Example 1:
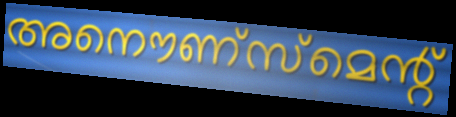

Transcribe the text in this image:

അനൌണ്സ്മെന്റ്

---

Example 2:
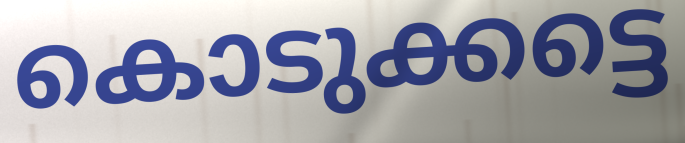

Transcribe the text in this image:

കൊടുക്കട്ടെ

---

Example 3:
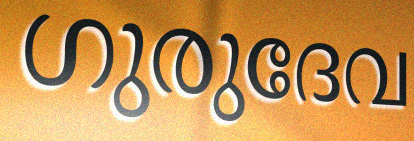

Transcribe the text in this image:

ഗുരുദേവ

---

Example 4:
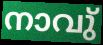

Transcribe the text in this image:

നാവു്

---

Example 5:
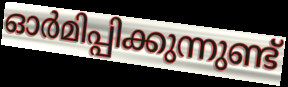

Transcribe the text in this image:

ഓർമിപ്പിക്കുന്നുണ്ട്